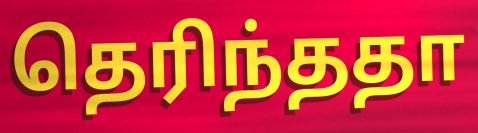
தெரிந்ததா